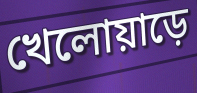
খেলোয়াড়ে